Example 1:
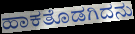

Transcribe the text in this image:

ಹಾಕತೊಡಗಿದನು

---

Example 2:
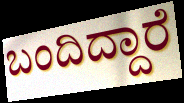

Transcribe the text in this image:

ಬಂದಿದ್ದಾರೆ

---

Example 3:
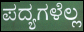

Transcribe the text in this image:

ಪದ್ಯಗಳೆಲ್ಲ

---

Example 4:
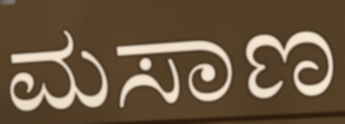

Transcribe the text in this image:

ಮಸಾಣ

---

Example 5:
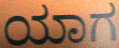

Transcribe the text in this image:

ಯಾಗ